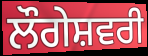
ਲੌਗੇਸ਼ਵਰੀ